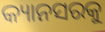
କ୍ୟାନସରକୁ